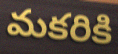
మకరికి